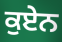
ਕੁਏਨ